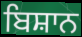
ਬਿਸ਼ਾਨ